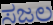
ಸಜಲ